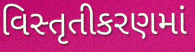
વિસ્તૃતીકરણમાં